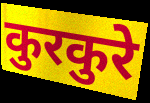
कुरकुरे